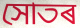
সোতৰ